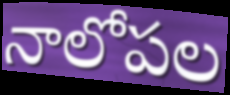
నాలోపల